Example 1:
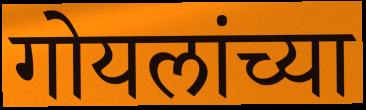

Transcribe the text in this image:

गोयलांच्या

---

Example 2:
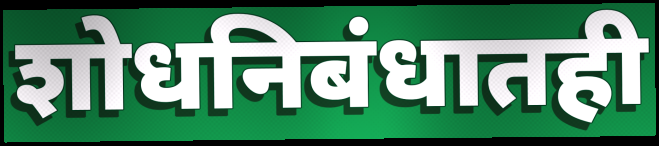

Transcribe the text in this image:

शोधनिबंधातही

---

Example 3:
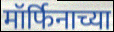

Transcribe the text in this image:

मॉर्फिनाच्या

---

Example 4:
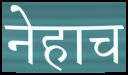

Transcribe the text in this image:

नेहाच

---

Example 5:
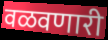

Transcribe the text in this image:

वळवणारी